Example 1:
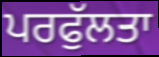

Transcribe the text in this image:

ਪਰਫੁੱਲਤਾ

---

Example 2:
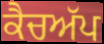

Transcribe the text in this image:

ਕੈਚਅੱਪ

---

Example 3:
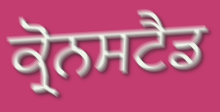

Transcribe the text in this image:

ਕ੍ਰੋਨਸਟੈਡ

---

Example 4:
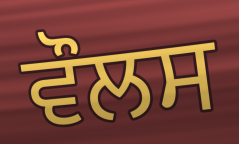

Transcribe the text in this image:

ਵੌਲਸ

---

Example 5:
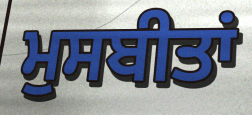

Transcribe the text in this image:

ਮੁਸਬੀਤਾਂ